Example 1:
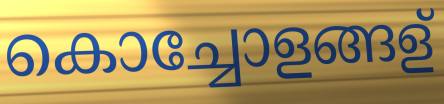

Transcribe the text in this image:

കൊച്ചോളങ്ങള്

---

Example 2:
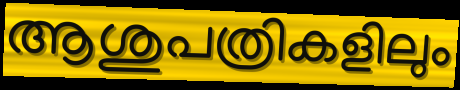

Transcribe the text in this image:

ആശുപത്രികളിലും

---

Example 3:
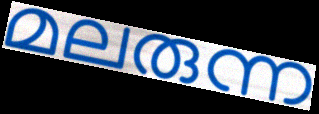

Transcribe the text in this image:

മലരുന്ന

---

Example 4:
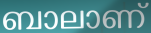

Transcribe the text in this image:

ബാലാണ്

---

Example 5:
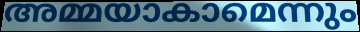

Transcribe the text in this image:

അമ്മയാകാമെന്നും